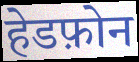
हेडफ़ोन